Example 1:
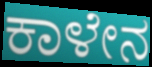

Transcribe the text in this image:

ಕಾಳೇನ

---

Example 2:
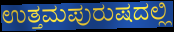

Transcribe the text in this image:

ಉತ್ತಮಪುರುಷದಲ್ಲಿ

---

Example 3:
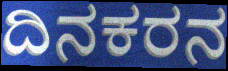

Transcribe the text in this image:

ದಿನಕರನ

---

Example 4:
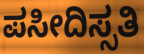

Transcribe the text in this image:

ಪಸೀದಿಸ್ಸತಿ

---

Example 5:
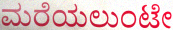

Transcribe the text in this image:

ಮರೆಯಲುಂಟೇ